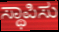
ಸ್ಥಾಪಿಸು